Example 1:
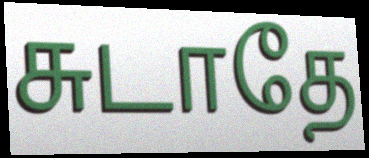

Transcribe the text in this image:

சுடாதே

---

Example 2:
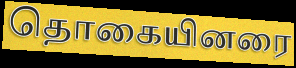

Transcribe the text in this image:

தொகையினரை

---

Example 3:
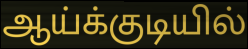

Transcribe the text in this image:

ஆய்க்குடியில்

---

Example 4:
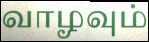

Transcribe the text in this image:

வாழவும்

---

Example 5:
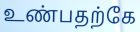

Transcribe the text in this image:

உண்பதற்கே